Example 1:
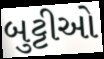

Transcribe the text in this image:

બુટ્ટીઓ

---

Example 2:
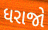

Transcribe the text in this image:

ધરાજો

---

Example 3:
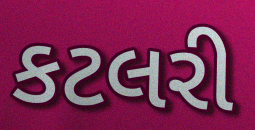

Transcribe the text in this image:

કટલરી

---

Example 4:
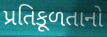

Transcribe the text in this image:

પ્રતિકૂળતાનો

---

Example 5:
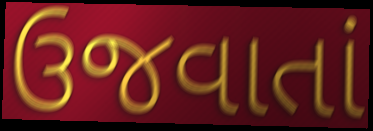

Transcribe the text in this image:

ઉજવાતાં